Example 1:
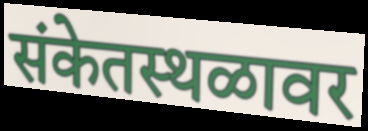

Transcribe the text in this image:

संकेतस्थळावर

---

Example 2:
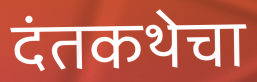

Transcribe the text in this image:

दंतकथेचा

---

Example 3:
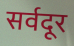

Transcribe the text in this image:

सर्वदूर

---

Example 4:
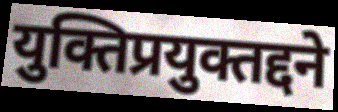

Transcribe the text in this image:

युक्तिप्रयुक्तद्दने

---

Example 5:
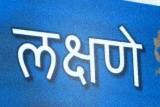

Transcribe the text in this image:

लक्षणे